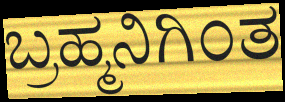
ಬ್ರಹ್ಮನಿಗಿಂತ